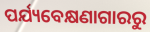
ପର୍ଯ୍ୟବେକ୍ଷଣାଗାରରୁ